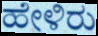
ಹೇಳಿರು